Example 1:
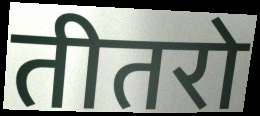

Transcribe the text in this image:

तीतरो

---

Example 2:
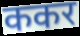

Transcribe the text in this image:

ककर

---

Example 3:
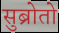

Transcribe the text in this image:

सुब्रोतो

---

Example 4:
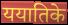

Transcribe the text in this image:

ययातिके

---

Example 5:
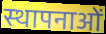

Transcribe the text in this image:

स्थापनाओं